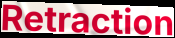
Retraction